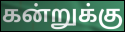
கன்றுக்கு